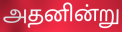
அதனின்று